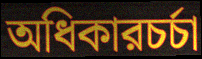
অধিকারচর্চা